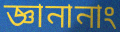
জ্ঞানানাং